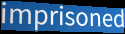
imprisoned